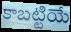
కాబట్టియే